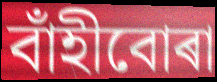
বাঁহীবোৰা